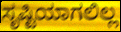
ಸೃಷ್ಟಿಯಾಗಲಿಲ್ಲ